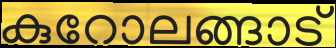
കുറോലങ്ങാട്